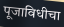
पूजाविधीचा